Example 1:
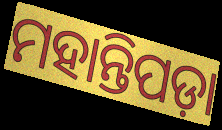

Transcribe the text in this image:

ମହାନ୍ତିପଡ଼ା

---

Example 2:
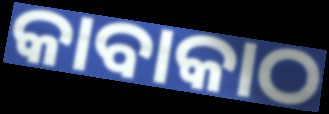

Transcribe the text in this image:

କାବାକାଠ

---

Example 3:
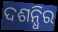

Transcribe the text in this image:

ଦଶନ୍ଧିର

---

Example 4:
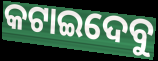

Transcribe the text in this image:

କଟାଇଦେବୁ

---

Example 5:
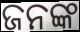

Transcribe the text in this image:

ଜନଙ୍କ